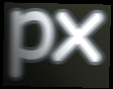
px